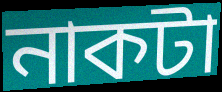
নাকটা